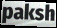
paksh